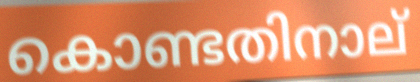
കൊണ്ടതിനാല്